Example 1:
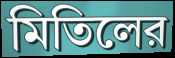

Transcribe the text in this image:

মিতিলের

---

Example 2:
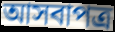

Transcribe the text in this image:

আসবাপত্র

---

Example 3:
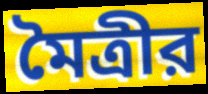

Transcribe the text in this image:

মৈত্রীর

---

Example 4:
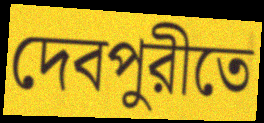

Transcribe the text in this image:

দেবপুরীতে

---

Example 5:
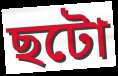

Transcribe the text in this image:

ছটো